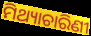
ମିଥ୍ୟାଚାରିଣୀ